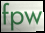
fpw